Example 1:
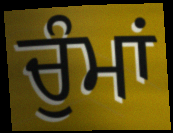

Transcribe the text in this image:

ਚੁੰਮਾਂ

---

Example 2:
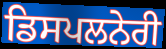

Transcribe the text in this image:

ਡਿਸਪਲਨੇਰੀ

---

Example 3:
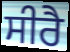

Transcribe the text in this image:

ਸੀਰੈ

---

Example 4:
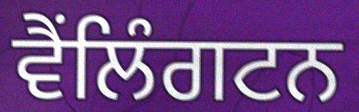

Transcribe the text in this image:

ਵੈਂਲਿੰਗਟਨ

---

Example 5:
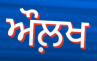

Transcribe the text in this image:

ਔਲ਼ਖ